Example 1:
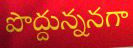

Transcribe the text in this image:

పొద్దున్ననగా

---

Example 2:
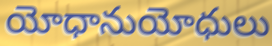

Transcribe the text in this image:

యోధానుయోధులు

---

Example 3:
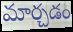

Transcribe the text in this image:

మార్చడం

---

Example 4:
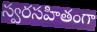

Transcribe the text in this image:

స్వరసహితంగా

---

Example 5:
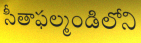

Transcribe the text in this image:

సీతాఫల్మండిలోని